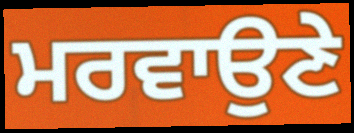
ਮਰਵਾਉਣੇ